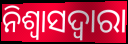
ନିଶ୍ୱାସଦ୍ୱାରା